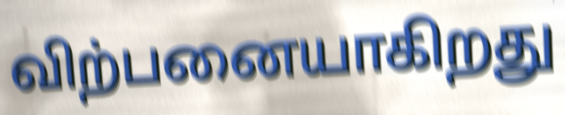
விற்பனையாகிறது